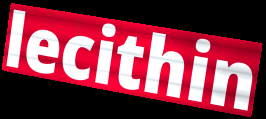
lecithin